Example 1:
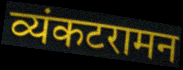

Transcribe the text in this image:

व्यंकटरामन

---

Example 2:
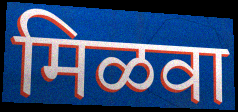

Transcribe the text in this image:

मिळवा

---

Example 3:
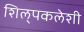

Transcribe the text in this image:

शिल्पकलेशी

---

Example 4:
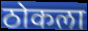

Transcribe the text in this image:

ठोकला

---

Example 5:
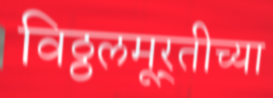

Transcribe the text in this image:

विठ्ठलमूर्तीच्या